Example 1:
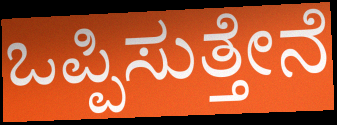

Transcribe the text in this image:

ಒಪ್ಪಿಸುತ್ತೇನೆ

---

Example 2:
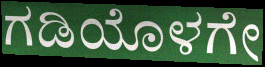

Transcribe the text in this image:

ಗಡಿಯೊಳಗೇ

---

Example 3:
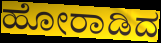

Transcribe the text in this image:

ಹೋರಾಡಿದ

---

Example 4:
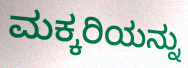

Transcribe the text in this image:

ಮಕ್ಕರಿಯನ್ನು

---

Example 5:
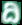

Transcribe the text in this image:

ದಿ